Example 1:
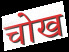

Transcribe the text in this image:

चोख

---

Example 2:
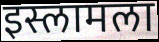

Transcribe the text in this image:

इस्लामला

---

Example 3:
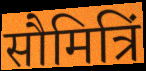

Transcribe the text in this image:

सौमित्रिं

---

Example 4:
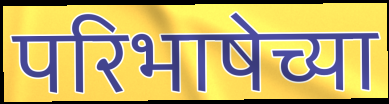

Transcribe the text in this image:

परिभाषेच्या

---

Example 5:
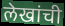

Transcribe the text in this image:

लेखांची